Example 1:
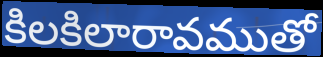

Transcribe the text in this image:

కిలకిలారావముతో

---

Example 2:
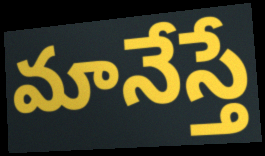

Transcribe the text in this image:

మానేస్తే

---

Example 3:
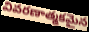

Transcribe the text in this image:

వివరణాత్మకమైన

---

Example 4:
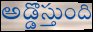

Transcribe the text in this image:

అడ్డొస్తుంది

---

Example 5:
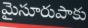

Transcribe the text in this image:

మైసూరుపాకు